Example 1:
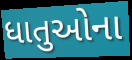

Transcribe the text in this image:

ધાતુઓના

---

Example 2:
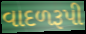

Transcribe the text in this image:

વાદળરૂપી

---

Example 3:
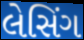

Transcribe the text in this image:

લેસિંગ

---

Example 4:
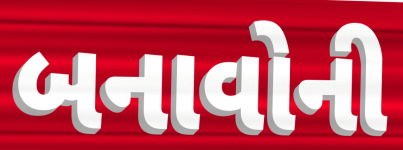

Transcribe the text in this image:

બનાવોની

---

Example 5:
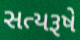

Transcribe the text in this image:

સત્યરૂષે